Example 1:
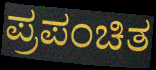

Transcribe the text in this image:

ಪ್ರಪಂಚಿತ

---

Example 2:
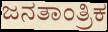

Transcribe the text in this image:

ಜನತಾಂತ್ರಿಕ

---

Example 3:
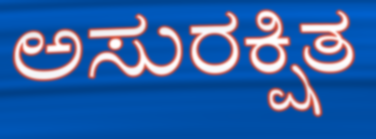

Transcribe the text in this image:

ಅಸುರಕ್ಷಿತ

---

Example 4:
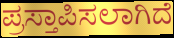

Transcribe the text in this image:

ಪ್ರಸ್ತಾಪಿಸಲಾಗಿದೆ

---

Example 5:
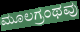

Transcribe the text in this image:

ಮೂಲಗ್ರಂಥವು